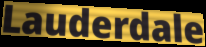
Lauderdale